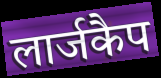
लार्जकैप